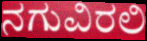
ನಗುವಿರಲಿ